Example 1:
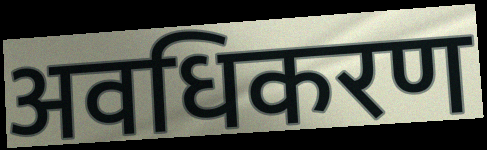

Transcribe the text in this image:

अवधिकरण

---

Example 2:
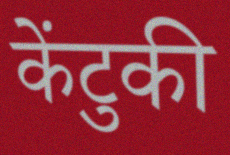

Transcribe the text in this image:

केंटुकी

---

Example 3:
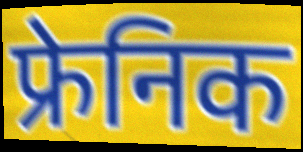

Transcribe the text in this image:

फ्रेनिक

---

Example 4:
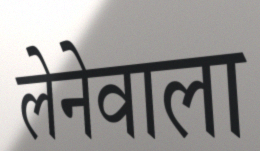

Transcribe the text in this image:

लेनेवाला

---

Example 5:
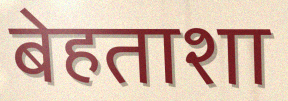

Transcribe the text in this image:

बेहताशा